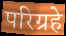
परिग्रहे